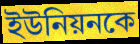
ইউনিয়নকে